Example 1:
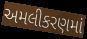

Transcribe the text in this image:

અમલીકરણમાં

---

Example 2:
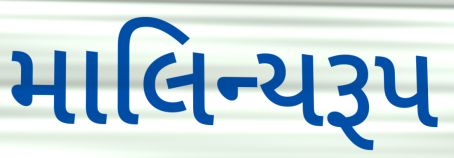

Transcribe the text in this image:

માલિન્યરૂપ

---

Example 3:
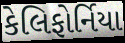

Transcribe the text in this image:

કેલિફોર્નિયા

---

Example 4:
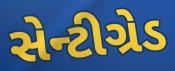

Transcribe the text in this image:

સેન્ટીગ્રેડ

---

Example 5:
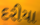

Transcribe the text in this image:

દરીયા